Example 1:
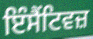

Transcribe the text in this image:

ਇੰਸੈਂਟਿਵਜ਼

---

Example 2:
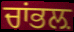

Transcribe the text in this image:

ਚਾਂਭਲ਼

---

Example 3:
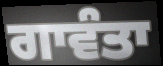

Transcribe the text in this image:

ਗਾਵੰਤਾ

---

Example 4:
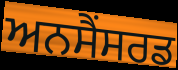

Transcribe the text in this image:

ਅਨਸੈਂਸਰਡ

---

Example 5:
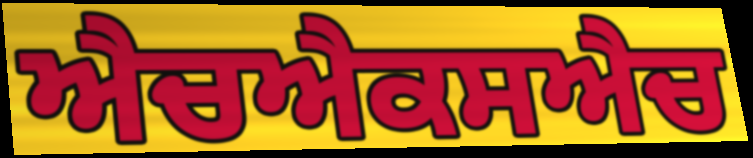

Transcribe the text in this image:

ਐਚਐਕਸਐਚ